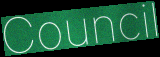
Council